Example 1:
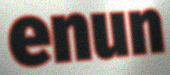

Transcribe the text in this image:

enun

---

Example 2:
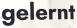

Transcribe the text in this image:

gelernt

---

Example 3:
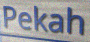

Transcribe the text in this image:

Pekah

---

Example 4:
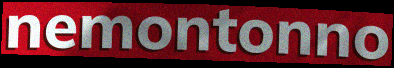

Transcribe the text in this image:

nemontonno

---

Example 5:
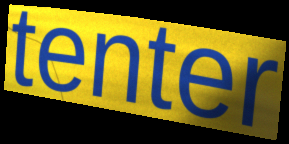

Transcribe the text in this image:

tenter